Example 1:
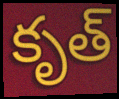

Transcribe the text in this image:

కృత్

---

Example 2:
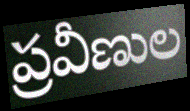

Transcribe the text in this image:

ప్రవీణుల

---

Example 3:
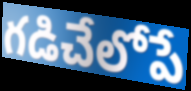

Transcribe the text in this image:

గడిచేలోపే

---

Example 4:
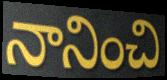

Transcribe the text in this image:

నానించి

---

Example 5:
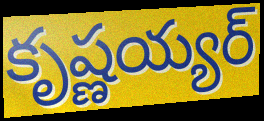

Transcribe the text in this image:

కృష్ణయ్యర్